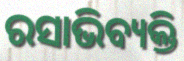
ରସାଭିବ୍ୟକ୍ତି